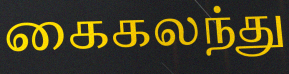
கைகலந்து